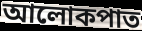
আলোকপাত